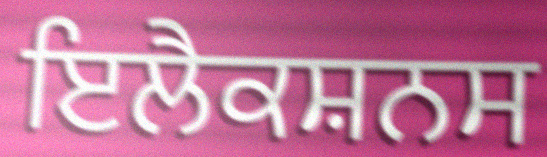
ਇਲੈਕਸ਼ਨਸ